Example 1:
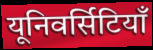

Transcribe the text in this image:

यूनिवर्सिटियाँ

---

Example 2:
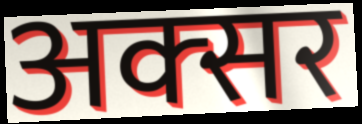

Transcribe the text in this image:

अक्‍सर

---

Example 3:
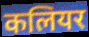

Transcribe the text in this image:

कलियर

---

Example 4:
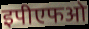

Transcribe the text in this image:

इपीएफओ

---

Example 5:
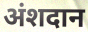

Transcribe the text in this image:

अंशदान